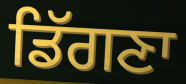
ਡਿੱਗਣਾ